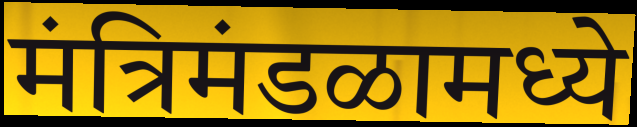
मंत्रिमंडळामध्ये